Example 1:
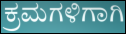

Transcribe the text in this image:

ಕ್ರಮಗಳಿಗಾಗಿ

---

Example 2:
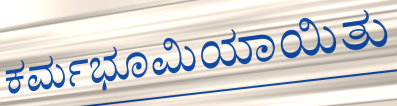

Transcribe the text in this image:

ಕರ್ಮಭೂಮಿಯಾಯಿತು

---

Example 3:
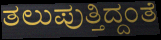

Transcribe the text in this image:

ತಲುಪುತ್ತಿದ್ದಂತೆ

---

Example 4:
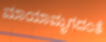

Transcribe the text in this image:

ಮಾಯಾಮೃಗದಂತೆ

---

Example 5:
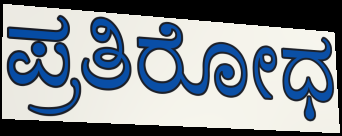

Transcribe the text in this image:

ಪ್ರತಿರೋಧ